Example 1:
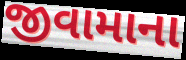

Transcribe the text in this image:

જીવામાના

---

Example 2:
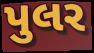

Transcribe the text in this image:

પુલર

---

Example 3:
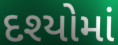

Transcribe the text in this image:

દશ્યોમાં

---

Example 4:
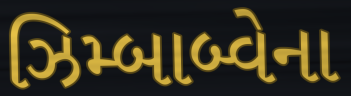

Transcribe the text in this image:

ઝિમ્બાબ્વેના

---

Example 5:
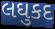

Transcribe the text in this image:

લઘુકદ